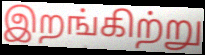
இறங்கிற்று